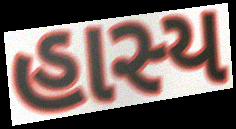
હાસ્ય